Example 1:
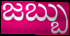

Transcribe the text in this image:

జబ్బు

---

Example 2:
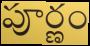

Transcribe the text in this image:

పూర్ణం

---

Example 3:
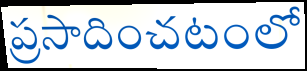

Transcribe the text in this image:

ప్రసాదించటంలో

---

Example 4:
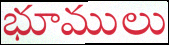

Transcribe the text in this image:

భూములు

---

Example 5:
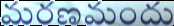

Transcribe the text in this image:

మరణమందు